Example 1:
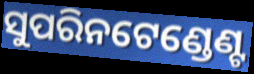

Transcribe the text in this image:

ସୁପରିନଟେଣ୍ଡେଣ୍ଟ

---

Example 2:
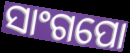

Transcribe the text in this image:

ସାଂଗପୋ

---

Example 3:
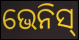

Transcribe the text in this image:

ଭେନିସ୍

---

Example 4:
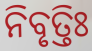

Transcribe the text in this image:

ନିବୃତ୍ତିଃ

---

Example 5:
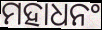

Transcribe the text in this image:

ମହାଧନଂ